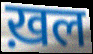
ख़ल